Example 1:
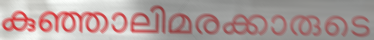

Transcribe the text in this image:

കുഞ്ഞാലിമരക്കാരുടെ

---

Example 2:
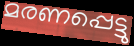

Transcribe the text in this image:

മരണപ്പെട്ടു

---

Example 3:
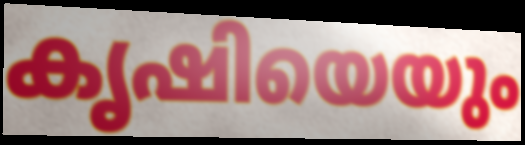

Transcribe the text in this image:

കൃഷിയെയും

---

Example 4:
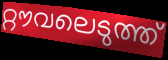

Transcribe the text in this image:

റ്റൗവലെടുത്ത്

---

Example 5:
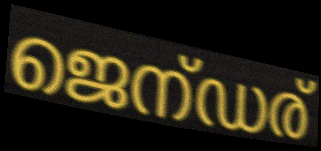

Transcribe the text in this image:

ജെന്ഡര്